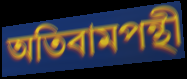
অতিবামপন্থী